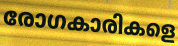
രോഗകാരികളെ